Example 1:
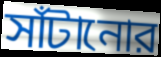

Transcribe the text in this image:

সাঁটানোর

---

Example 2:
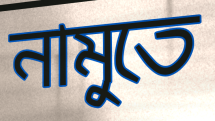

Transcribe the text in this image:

নামুতে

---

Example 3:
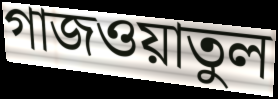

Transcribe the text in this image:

গাজওয়াতুল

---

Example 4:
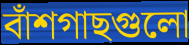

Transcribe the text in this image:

বাঁশগাছগুলো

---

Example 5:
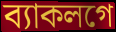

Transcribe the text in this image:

ব্যাকলগে